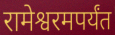
रामेश्वरमपर्यंत